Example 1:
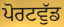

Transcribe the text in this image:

ਪੋਰਟਵੁੱਡ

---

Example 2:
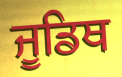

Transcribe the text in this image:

ਜੂਡਿਥ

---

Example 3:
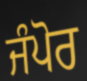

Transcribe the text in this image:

ਜੰਪੋਰ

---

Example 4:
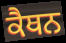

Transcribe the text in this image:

ਕੈਥਨ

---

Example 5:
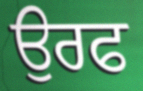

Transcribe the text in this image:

ਉਰਫ